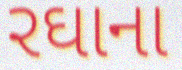
રઘાના